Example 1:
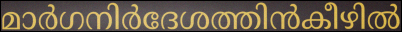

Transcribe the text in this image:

മാർഗനിർദേശത്തിൻകീഴിൽ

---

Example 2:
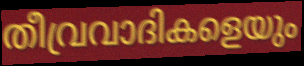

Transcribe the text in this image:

തീവ്രവാദികളെയും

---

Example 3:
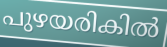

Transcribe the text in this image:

പുഴയരികിൽ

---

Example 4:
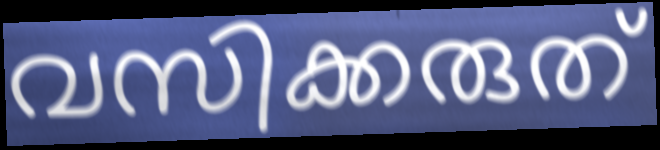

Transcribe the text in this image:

വസിക്കരുത്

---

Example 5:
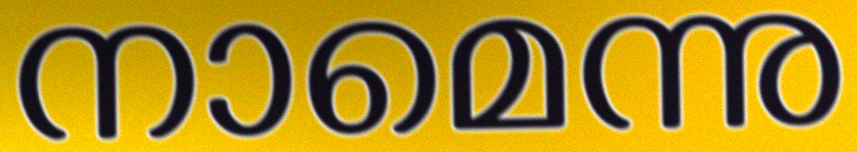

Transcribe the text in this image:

നാമെന്നു